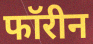
फॉरीन